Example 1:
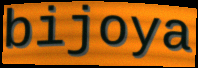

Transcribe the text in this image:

bijoya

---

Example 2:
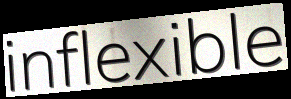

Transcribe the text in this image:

inflexible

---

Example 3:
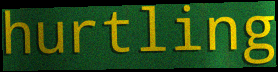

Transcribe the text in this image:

hurtling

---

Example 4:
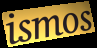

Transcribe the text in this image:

ismos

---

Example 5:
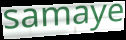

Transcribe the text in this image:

samaye